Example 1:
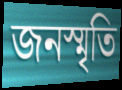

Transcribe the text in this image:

জনস্মৃতি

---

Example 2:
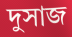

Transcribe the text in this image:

দুসাজ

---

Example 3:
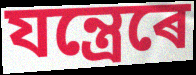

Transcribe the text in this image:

যন্ত্ৰেৰে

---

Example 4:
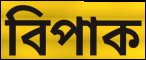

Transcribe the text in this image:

বিপাক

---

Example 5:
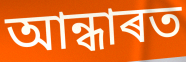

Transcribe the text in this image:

আন্ধাৰত